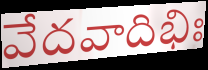
వేదవాదిభిః